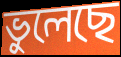
ভুলেছে